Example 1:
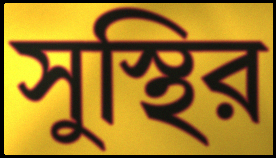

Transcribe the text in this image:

সুস্থির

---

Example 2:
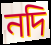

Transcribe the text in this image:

নদি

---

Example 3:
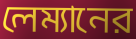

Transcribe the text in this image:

লেম্যানের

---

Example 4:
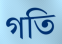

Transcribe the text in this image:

গতি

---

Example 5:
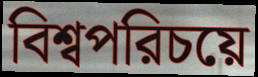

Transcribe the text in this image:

বিশ্বপরিচয়ে